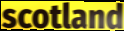
scotland